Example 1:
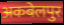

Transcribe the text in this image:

अकबेलपुर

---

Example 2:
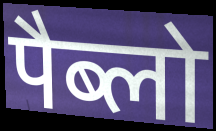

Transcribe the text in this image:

पैब्लो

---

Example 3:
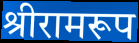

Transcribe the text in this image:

श्रीरामरूप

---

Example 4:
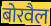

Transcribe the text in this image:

बोरवैल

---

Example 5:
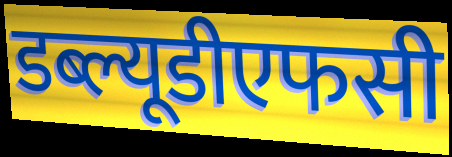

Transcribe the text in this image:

डब्ल्यूडीएफसी